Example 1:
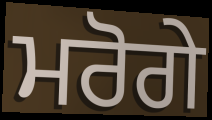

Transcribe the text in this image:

ਮਰੋਗੇ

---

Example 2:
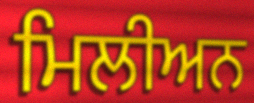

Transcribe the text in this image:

ਮਿਲੀਅਨ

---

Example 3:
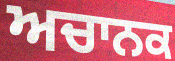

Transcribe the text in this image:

ਅਚਾਨਕ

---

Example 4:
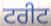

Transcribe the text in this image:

ਟਰੀਟ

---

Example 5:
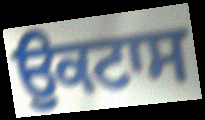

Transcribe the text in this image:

ਉਕਟਾਸ